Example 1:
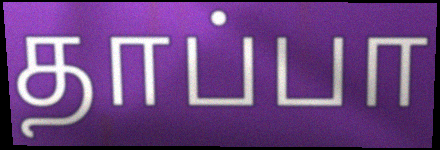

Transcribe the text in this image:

தாப்பா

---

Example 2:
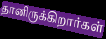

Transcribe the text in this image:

தானிருக்கிறார்கள்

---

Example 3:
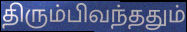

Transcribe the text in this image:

திரும்பிவந்ததும்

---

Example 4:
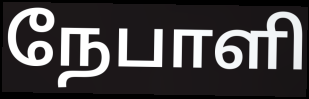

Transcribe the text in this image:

நேபாளி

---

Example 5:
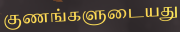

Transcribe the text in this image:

குணங்களுடையது